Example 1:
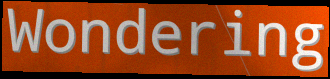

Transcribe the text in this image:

Wondering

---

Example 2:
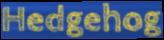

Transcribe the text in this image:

Hedgehog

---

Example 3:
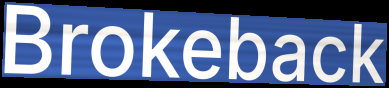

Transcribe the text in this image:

Brokeback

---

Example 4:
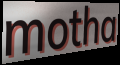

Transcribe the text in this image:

motha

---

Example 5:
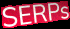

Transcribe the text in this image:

SERPs